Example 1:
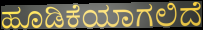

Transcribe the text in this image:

ಹೂಡಿಕೆಯಾಗಲಿದೆ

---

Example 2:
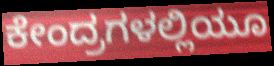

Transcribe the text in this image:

ಕೇಂದ್ರಗಳಲ್ಲಿಯೂ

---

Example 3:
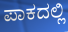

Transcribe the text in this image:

ಪಾಕದಲ್ಲಿ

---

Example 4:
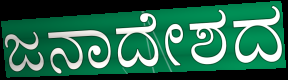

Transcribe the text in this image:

ಜನಾದೇಶದ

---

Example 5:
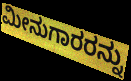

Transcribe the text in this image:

ಮೀನುಗಾರರನ್ನು